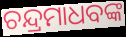
ଚନ୍ଦ୍ରମାଧବଙ୍କ